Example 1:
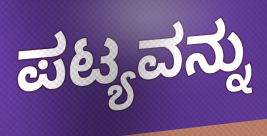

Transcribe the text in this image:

ಪಟ್ಯವನ್ನು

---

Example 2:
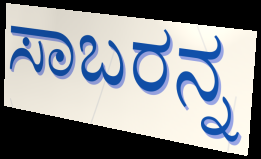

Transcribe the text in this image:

ಸಾಬರನ್ನ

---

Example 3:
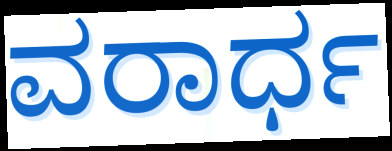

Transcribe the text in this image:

ವರಾರ್ಧ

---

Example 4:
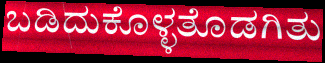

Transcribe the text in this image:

ಬಡಿದುಕೊಳ್ಳತೊಡಗಿತು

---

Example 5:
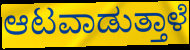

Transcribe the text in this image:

ಆಟವಾಡುತ್ತಾಳೆ